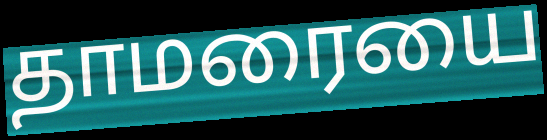
தாமரையை